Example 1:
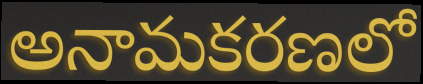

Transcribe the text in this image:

అనామకరణలో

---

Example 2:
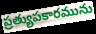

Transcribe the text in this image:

ప్రత్యుపకారమును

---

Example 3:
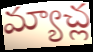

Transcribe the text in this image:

మ్యాచ్ల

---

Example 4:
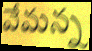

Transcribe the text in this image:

వేమన్న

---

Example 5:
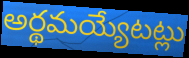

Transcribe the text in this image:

అర్థమయ్యేటట్లు